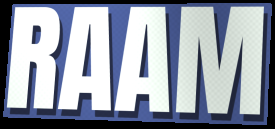
RAAM